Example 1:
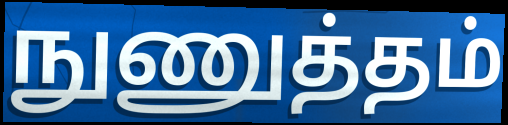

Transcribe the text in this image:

நுணுத்தம்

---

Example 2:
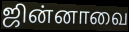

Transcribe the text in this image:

ஜின்னாவை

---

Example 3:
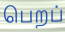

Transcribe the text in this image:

பெறப்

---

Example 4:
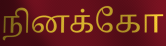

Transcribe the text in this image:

நினக்கோ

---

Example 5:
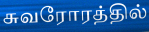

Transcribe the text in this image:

சுவரோரத்தில்